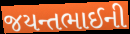
જયન્તભાઈની